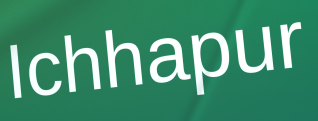
Ichhapur